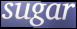
sugar